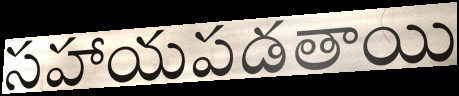
సహాయపడతాయి